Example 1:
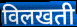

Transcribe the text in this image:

विलखती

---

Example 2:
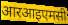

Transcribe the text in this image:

आरआइएमसी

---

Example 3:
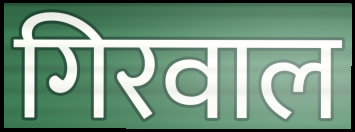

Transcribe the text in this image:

गिरवाल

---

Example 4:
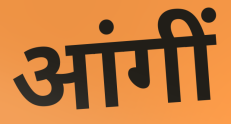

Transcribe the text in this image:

आंगीं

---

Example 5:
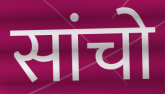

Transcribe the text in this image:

सांचो